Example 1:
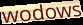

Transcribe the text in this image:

wodows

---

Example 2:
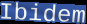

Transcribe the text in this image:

Ibidem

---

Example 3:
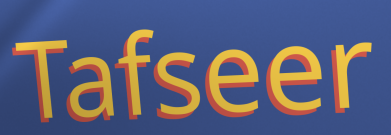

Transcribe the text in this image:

Tafseer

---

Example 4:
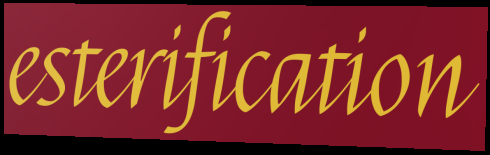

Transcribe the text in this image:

esterification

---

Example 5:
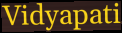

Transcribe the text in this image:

Vidyapati